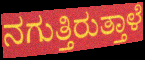
ನಗುತ್ತಿರುತ್ತಾಳೆ